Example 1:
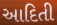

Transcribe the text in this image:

આદિતી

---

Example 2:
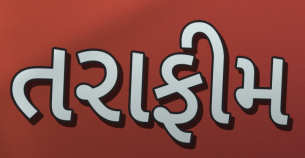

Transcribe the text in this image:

તરાફીમ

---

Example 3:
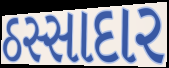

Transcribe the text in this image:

ઠસ્સાદાર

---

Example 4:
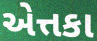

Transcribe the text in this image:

એત્તકા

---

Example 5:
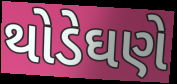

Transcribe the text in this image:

થોડેઘણે